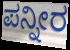
ಪನ್ನೀರ